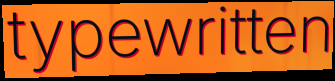
typewritten